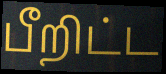
பீறிட்ட